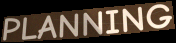
PLANNING